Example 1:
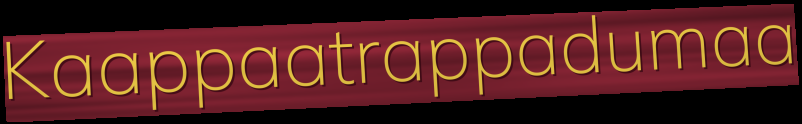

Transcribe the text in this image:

Kaappaatrappadumaa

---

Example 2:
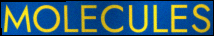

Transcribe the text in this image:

MOLECULES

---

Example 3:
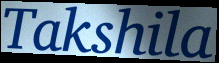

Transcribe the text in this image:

Takshila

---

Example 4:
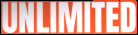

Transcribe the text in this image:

UNLIMITED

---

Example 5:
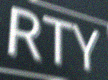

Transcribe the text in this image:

RTY